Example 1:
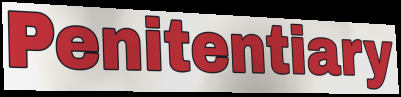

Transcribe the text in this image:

Penitentiary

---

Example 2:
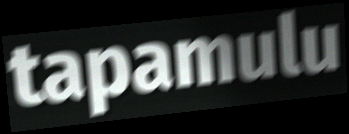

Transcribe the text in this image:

tapamulu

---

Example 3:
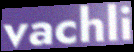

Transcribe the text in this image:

vachli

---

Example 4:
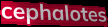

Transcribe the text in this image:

cephalotes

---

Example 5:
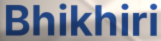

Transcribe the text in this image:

Bhikhiri